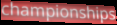
championships